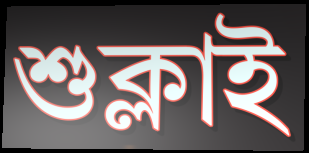
শুক্লাই